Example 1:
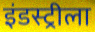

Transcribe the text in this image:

इंडस्ट्रीला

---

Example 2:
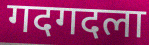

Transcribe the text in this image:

गदगदला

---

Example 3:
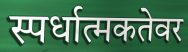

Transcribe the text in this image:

स्पर्धात्मकतेवर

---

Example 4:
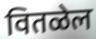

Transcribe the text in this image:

वितळेल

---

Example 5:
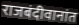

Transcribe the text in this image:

राजबंदीवानांत